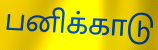
பனிக்காடு